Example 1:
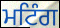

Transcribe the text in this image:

ਮਟਿੰਗ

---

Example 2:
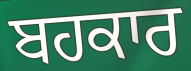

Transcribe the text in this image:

ਬਹਕਾਰ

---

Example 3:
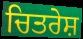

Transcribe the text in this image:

ਚਿਤਰੇਸ਼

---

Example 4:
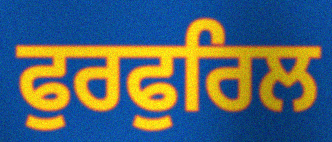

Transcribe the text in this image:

ਫੁਰਫੁਰਿਲ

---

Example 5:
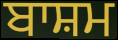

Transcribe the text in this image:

ਬਾਸ਼ਮ